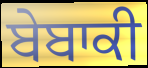
ਬੇਬਾਕੀ